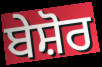
ਬੇਸ਼ੋਰ